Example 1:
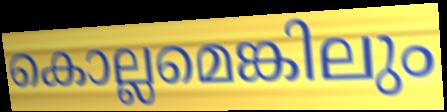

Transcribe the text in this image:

കൊല്ലമെങ്കിലും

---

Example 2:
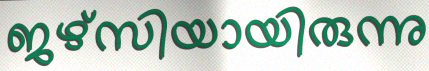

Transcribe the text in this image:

ജഴ്സിയായിരുന്നു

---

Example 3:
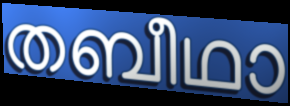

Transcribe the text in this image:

തബീഥാ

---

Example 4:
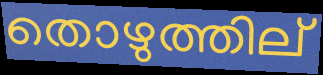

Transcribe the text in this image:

തൊഴുത്തില്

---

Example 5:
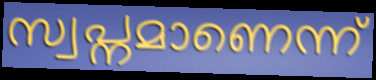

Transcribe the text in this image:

സ്വപ്നമാണെന്ന്